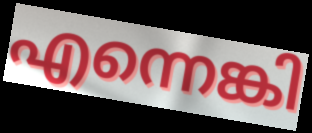
എന്നെങ്കി